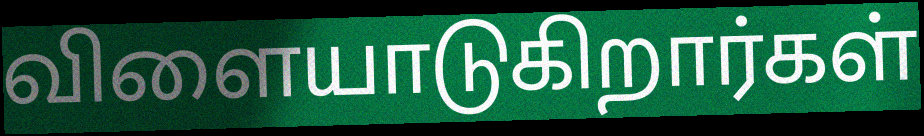
விளையாடுகிறார்கள்